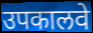
उपकालवे